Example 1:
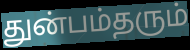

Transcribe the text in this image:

துன்பம்தரும்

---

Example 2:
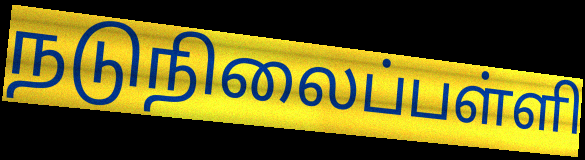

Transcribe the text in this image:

நடுநிலைப்பள்ளி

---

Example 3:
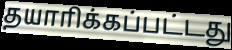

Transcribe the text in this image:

தயாரிக்கப்பட்டது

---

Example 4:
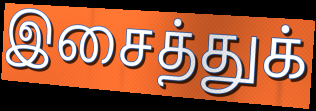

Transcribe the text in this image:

இசைத்துக்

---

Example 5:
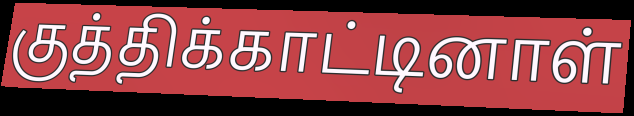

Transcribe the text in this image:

குத்திக்காட்டினாள்